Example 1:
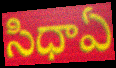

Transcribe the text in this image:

సిధాఏ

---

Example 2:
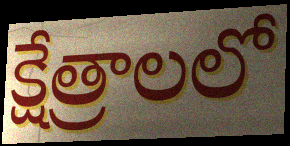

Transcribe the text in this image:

క్షేత్రాలలో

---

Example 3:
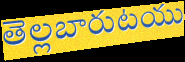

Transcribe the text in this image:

తెల్లబారుటయు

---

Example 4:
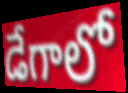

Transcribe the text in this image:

డేగాలో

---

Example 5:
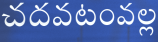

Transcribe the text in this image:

చదవటంవల్ల